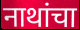
नाथांचा